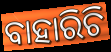
ବାହାରିଚି